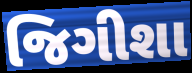
જિગીશા